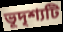
ভূদৃশ্যটি